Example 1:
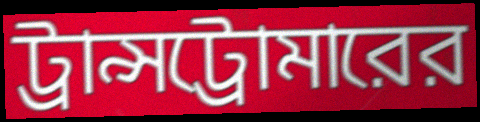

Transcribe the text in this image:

ট্রান্সট্রোমারের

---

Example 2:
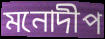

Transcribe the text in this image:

মনোদীপ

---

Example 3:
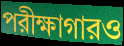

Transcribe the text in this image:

পরীক্ষাগারও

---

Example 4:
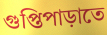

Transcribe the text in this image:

গুপ্তিপাড়াতে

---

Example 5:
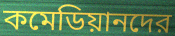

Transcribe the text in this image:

কমেডিয়ানদের